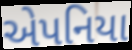
એપનિયા